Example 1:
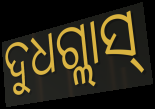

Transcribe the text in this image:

ଦୁଧଗ୍ଲାସ୍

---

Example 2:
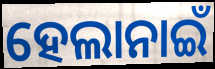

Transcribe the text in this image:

ହେଲାନାଇଁ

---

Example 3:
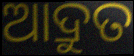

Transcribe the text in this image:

ଆଦ୍ରୁତ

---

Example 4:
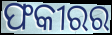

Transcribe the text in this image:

ଫକୀରର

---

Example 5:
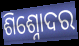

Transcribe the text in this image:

ଶିଶ୍ନୋଦର